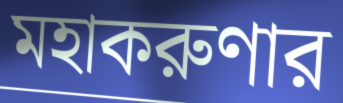
মহাকরুণার